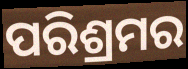
ପରିଶ୍ରମର